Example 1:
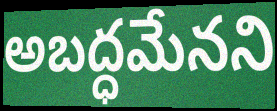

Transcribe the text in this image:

అబద్ధమేనని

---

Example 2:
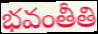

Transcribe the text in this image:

భవంతీతి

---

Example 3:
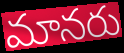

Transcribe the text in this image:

మానరు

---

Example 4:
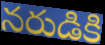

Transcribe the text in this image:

నరుడికి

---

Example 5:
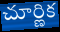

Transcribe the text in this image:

చూర్ణిక